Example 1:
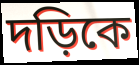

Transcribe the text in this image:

দড়িকে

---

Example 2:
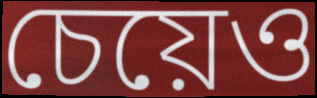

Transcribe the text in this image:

চেয়েও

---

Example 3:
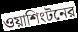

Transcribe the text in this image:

ওয়াশিংটনের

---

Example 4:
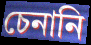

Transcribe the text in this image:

চেনানি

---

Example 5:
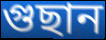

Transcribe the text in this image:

গুছান